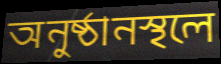
অনুষ্ঠানস্থলে